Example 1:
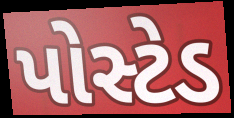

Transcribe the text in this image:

પોસ્ટેડ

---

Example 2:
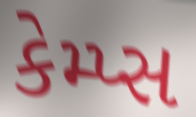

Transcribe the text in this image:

કેમ્પ્સ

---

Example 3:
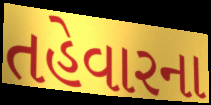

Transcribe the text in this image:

તહેવારના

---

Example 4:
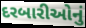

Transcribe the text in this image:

દરબારીઓનું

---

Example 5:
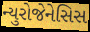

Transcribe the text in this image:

ન્યુરોજેનેસિસ